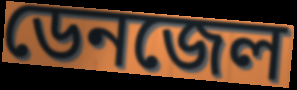
ডেনজেল